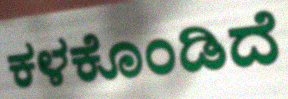
ಕಳಕೊಂಡಿದೆ